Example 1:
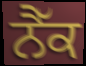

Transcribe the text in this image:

ਨੈੱਕ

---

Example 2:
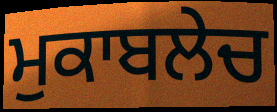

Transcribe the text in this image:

ਮੁਕਾਬਲੇਚ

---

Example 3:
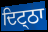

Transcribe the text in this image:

ਦਿਟ੍ਠਾ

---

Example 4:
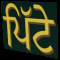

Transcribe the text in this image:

ਪਿੱਟੇ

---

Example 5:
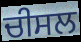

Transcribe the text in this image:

ਚੀਸਲ